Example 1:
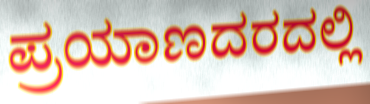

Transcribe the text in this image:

ಪ್ರಯಾಣದರದಲ್ಲಿ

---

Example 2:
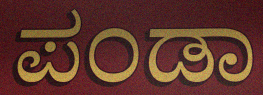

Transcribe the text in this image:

ಪಂಡಾ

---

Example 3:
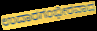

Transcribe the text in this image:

ಉದಾರಗಂಭೀರವಾದ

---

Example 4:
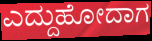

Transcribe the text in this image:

ಎದ್ದುಹೋದಾಗ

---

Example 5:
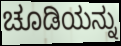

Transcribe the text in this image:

ಚೂಡಿಯನ್ನು